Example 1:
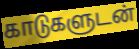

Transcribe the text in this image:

காடுகளுடன்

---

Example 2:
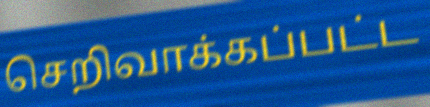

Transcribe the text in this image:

செறிவாக்கப்பட்ட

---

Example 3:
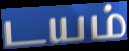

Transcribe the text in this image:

டயம்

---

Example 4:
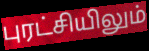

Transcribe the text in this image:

புரட்சியிலும்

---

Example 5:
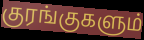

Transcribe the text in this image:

குரங்குகளும்